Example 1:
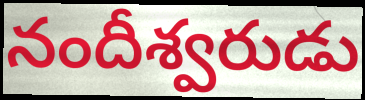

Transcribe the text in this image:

నందీశ్వరుడు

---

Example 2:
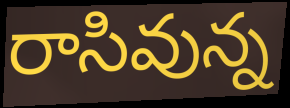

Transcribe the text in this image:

రాసివున్న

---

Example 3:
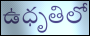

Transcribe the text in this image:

ఉధృతిలో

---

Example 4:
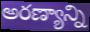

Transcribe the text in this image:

అరణ్యాన్ని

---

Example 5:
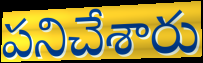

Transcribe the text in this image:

పనిచేశారు